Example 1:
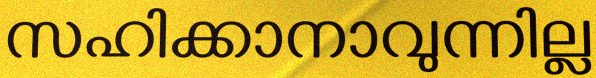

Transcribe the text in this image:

സഹിക്കാനാവുന്നില്ല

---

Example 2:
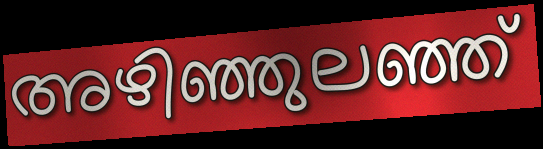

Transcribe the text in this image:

അഴിഞ്ഞുലഞ്ഞ്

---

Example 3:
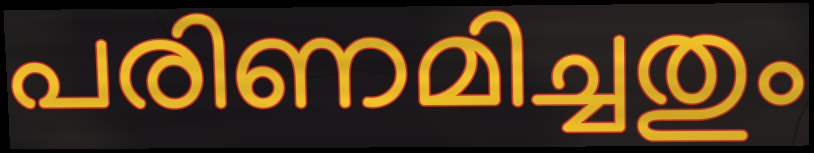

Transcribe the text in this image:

പരിണമിച്ചതും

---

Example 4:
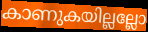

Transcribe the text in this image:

കാണുകയില്ലല്ലോ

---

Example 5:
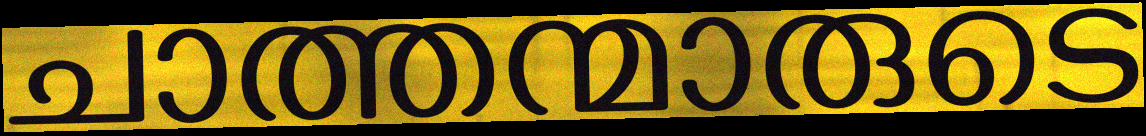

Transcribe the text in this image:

ചാത്തന്മാരുടെ